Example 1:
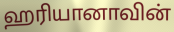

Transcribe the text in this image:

ஹரியானாவின்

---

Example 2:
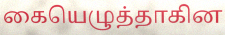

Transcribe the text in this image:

கையெழுத்தாகின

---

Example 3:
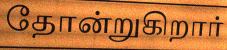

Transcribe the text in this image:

தோன்றுகிறார்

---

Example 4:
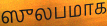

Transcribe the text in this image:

ஸுலபமாக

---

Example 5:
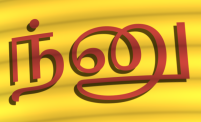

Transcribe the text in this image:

ந்னு